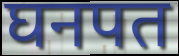
घनपत